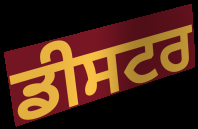
ਡੀਸਟਰ